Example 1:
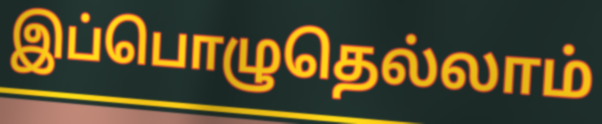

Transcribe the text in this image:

இப்பொழுதெல்லாம்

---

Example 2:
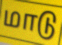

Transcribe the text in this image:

மாடு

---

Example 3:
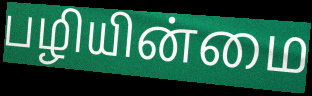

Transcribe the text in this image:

பழியின்மை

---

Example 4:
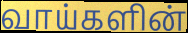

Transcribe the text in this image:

வாய்களின்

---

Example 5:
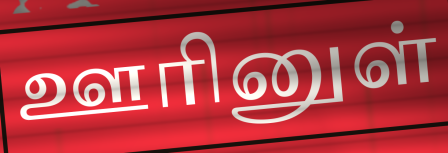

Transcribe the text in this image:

ஊரினுள்